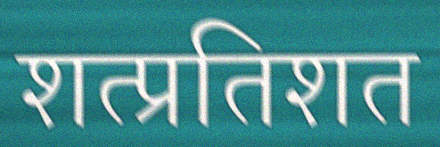
शत्प्रतिशत